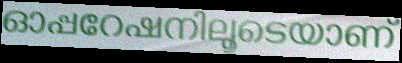
ഓപ്പറേഷനിലൂടെയാണ്